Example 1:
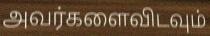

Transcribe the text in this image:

அவர்களைவிடவும்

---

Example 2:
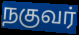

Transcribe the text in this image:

நகுவர்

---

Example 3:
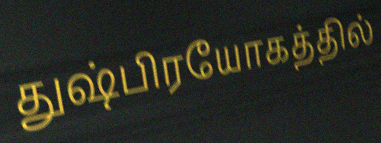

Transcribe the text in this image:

துஷ்பிரயோகத்தில்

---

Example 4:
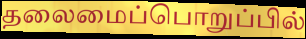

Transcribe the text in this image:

தலைமைப்பொறுப்பில்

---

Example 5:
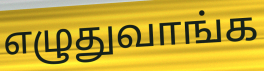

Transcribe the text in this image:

எழுதுவாங்க